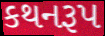
કથનરૂપ